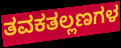
ತವಕತಲ್ಲಣಗಳ